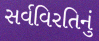
સર્વવિરતિનું